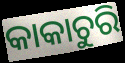
କାକାଚୁରି